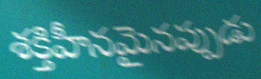
శక్తిహీనమైనప్పుడు